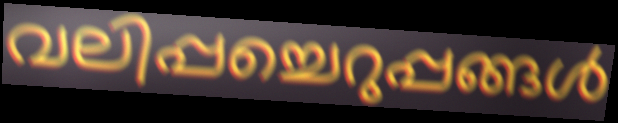
വലിപ്പച്ചെറുപ്പങ്ങൾ